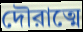
দৌরাত্মে